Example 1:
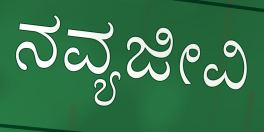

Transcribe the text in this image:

ನವ್ಯಜೀವಿ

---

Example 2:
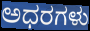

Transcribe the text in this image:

ಅಧರಗಳು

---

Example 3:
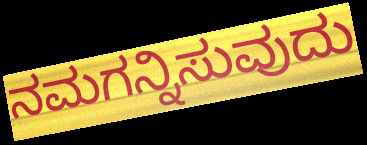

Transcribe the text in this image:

ನಮಗನ್ನಿಸುವುದು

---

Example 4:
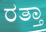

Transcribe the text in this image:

ರತ್ತಾ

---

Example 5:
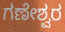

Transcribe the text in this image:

ಗಣೇಶ್ವರ